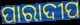
ପାରାଦୀପ